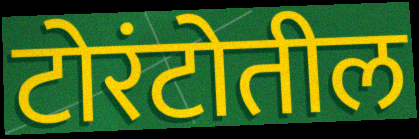
टोरंटोतील